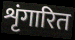
शृंगारित